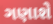
ગણાશે